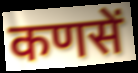
कणसें